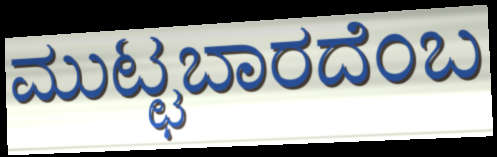
ಮುಟ್ಟಬಾರದೆಂಬ